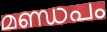
മണ്ഡപം